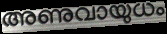
അണുവായുധം